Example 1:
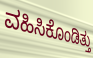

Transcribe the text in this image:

ವಹಿಸಿಕೊಂಡಿತ್ತು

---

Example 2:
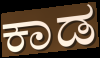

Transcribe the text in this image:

ಕಾಡ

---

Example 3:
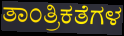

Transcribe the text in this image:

ತಾಂತ್ರಿಕತೆಗಳ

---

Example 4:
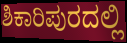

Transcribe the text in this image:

ಶಿಕಾರಿಪುರದಲ್ಲಿ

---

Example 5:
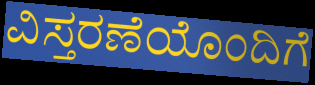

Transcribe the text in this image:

ವಿಸ್ತರಣೆಯೊಂದಿಗೆ